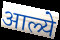
आल्ये